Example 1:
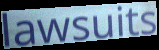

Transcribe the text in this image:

lawsuits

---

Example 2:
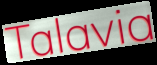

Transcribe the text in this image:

Talavia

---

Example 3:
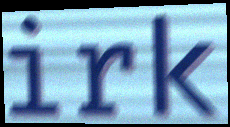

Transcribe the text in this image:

irk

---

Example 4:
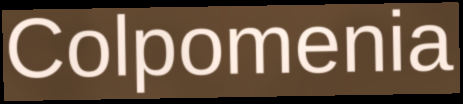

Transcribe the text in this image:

Colpomenia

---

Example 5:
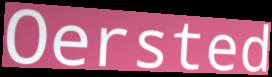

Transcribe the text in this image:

Oersted